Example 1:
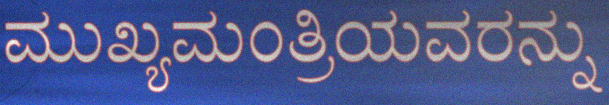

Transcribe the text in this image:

ಮುಖ್ಯಮಂತ್ರಿಯವರನ್ನು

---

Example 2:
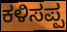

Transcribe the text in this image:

ಕಳಿಸಪ್ಪ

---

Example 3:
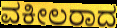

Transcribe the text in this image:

ವಕೀಲರಾದ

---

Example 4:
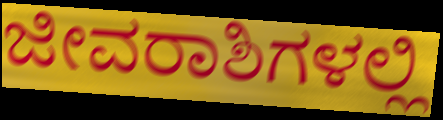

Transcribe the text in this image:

ಜೀವರಾಶಿಗಳಲ್ಲಿ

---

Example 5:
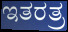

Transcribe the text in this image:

ಇತರತ್ರ